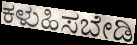
ಕಳುಹಿಸಬೇಡಿ